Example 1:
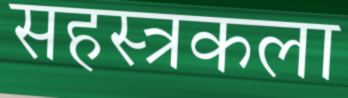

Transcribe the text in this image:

सहस्त्रकला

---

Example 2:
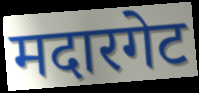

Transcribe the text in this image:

मदारगेट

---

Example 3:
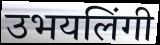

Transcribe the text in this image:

उभयलिंगी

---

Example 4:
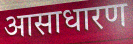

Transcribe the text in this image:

आसाधारण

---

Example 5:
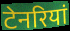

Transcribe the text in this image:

टेनरियां